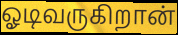
ஓடிவருகிறான்